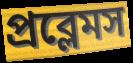
প্রব্লেমস